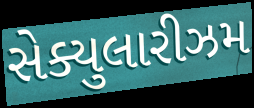
સેક્યુલારીઝમ